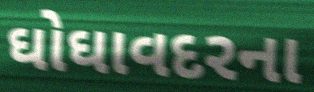
ઘોઘાવદરના